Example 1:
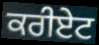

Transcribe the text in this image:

ਕਰੀਏਟ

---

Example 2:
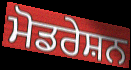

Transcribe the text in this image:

ਮੋਡਰੇਸ਼ਨ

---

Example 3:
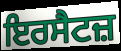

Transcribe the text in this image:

ਇਰਸੈਟਜ਼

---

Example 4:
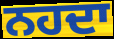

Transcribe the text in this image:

ਨਹਦਾ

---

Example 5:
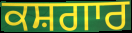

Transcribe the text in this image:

ਕਸ਼ਗਾਰ